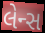
લેન્સ